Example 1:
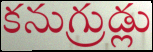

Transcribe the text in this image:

కనుగ్రుడ్లు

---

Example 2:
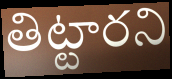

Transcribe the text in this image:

తిట్టారని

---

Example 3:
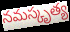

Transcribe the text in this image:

నమస్కృత్య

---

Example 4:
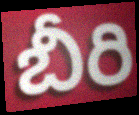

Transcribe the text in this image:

బీరి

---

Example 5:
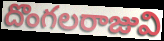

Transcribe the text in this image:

దొంగలరాజువి